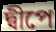
দ্বীপে